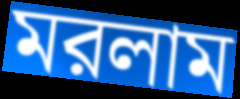
মরলাম